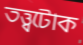
তত্ত্বটোক